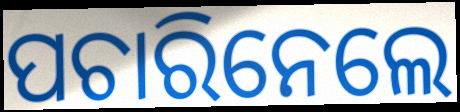
ପଚାରିନେଲେ